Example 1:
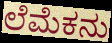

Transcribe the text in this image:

ಲೆಮೆಕನು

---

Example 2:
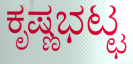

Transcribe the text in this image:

ಕೃಷ್ಣಭಟ್ಟ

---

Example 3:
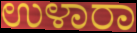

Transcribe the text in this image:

ಉಳಾರಾ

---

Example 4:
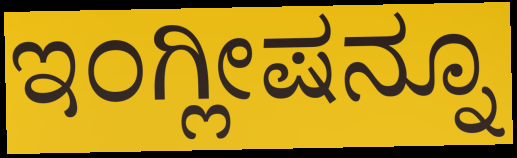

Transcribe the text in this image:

ಇಂಗ್ಲೀಷನ್ನೂ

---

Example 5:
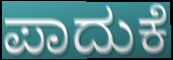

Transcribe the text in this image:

ಪಾದುಕೆ